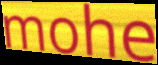
mohe